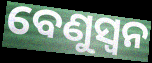
ବେଣୁସ୍ଵନ